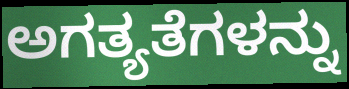
ಅಗತ್ಯತೆಗಳನ್ನು